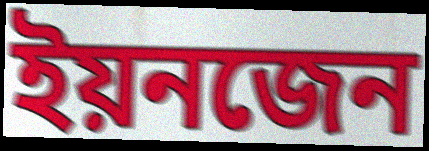
ইয়নজেন